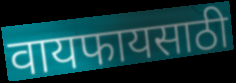
वायफायसाठी